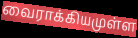
வைராக்கியமுள்ள